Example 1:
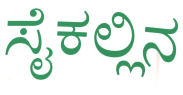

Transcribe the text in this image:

ಸೈಕಲ್ಲಿನ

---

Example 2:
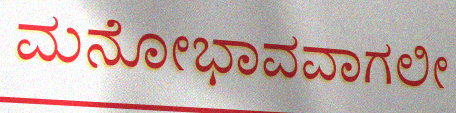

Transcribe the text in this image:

ಮನೋಭಾವವಾಗಲೀ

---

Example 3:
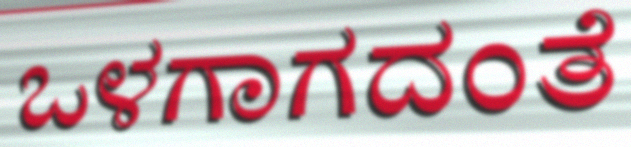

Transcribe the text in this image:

ಒಳಗಾಗದಂತೆ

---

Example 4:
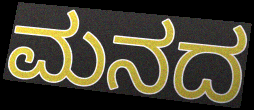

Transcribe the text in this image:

ಮನದ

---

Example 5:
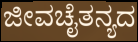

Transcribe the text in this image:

ಜೀವಚೈತನ್ಯದ